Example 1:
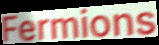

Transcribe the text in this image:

Fermions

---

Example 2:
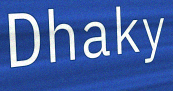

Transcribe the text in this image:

Dhaky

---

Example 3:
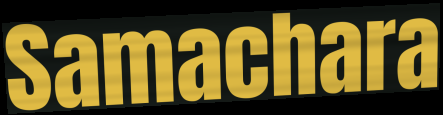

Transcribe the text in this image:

Samachara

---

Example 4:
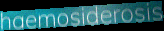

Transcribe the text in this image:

haemosiderosis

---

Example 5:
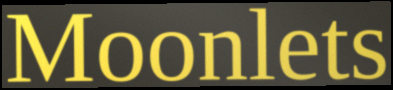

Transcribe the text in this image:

Moonlets